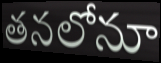
తనలోనూ